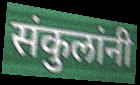
संकुलांनी